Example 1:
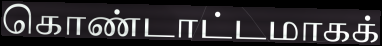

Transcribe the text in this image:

கொண்டாட்டமாகக்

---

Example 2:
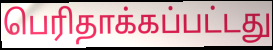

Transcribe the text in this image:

பெரிதாக்கப்பட்டது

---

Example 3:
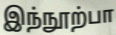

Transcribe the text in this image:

இந்நூற்பா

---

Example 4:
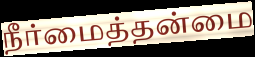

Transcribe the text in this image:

நீர்மைத்தன்மை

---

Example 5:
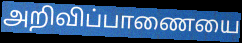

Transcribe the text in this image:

அறிவிப்பாணையை